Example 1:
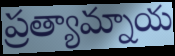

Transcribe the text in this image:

ప్రత్యామ్నాయ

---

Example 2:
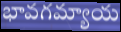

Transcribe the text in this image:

భావగమ్యాయ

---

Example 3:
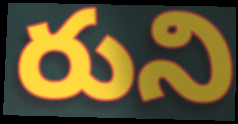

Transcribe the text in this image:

రుని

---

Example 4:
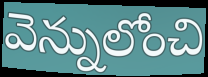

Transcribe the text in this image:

వెన్నులోంచి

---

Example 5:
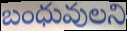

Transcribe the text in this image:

బంధువులని